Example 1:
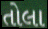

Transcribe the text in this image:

તોલા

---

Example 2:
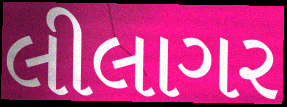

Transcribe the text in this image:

લીલાગર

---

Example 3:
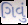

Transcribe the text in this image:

ગિવું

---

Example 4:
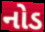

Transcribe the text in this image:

નોડ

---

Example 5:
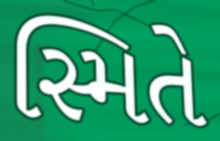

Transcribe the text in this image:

સ્મિતે